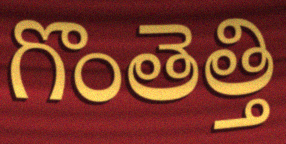
గొంతెత్తి